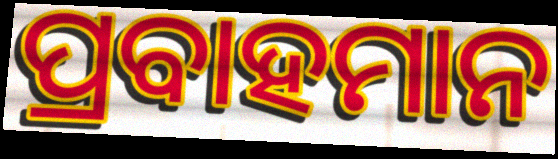
ପ୍ରବାହମାନ